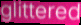
glittered